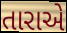
તારાએ